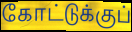
கோட்டுக்குப்